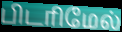
பிடரிமேல்